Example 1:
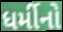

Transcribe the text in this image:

ધર્મીનો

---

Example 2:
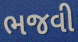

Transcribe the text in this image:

ભજવી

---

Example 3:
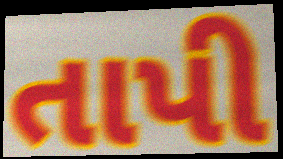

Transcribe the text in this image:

તાપી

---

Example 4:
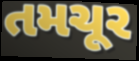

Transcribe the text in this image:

તમચૂર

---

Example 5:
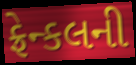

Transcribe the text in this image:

ફ્રેન્કલની